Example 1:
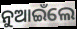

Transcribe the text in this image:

ନୁଆଇଁଲେ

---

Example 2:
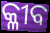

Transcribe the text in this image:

କ୍ଳୀବ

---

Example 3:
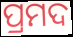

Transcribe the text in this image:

ପ୍ରମଦ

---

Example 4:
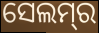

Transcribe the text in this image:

ସେଲମ୍‌ର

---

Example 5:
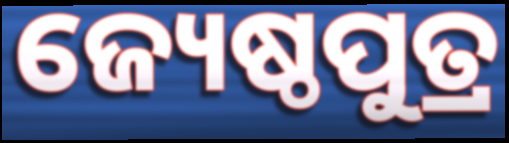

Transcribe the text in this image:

ଜ୍ୟେଷ୍ଠପୁତ୍ର